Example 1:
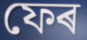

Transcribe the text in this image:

ফেৰ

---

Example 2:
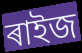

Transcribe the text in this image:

ৰাইজ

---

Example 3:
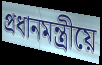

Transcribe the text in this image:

প্ৰধানমন্ত্ৰীয়ে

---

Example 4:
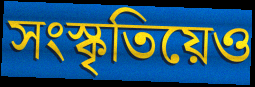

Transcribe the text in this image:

সংস্কৃতিয়েও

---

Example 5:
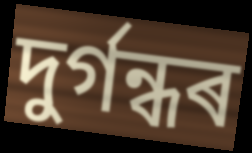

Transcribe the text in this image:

দুৰ্গন্ধৰ